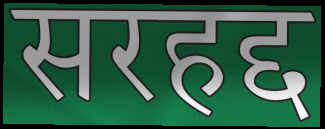
सरहद्द